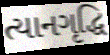
ત્યાનગૃદ્ધિ